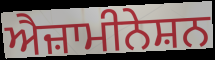
ਐਜ਼ਾਮੀਨੇਸ਼ਨ